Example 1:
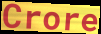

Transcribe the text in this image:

Crore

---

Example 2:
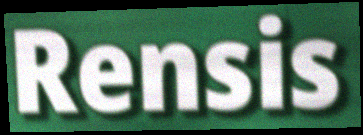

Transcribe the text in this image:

Rensis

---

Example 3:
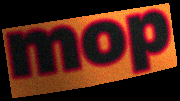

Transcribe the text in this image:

mop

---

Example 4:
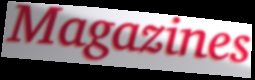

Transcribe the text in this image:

Magazines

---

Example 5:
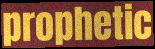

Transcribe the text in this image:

prophetic